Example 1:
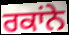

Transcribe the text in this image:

ਰਕਾਂਨੇ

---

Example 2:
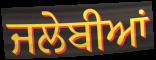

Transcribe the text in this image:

ਜਲੇਬੀਆਂ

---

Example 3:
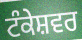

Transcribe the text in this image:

ਟੰਕੇਸ਼ਵਰ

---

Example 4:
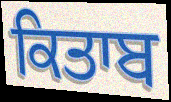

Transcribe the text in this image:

ਕਿਤਾਬ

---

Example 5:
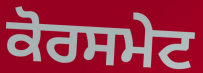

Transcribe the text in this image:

ਕੋਰਸਮੇਟ